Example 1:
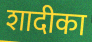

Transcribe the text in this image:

शादीका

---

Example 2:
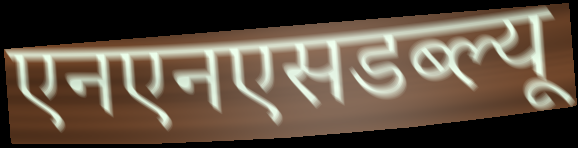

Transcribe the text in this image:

एनएनएसडब्ल्यू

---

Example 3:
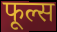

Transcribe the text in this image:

फूल्स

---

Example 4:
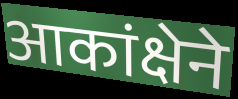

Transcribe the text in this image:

आकांक्षेने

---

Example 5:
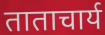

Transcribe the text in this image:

ताताचार्य